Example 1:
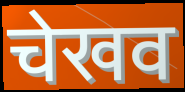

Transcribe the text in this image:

चेखव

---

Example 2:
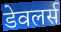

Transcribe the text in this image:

डेवलर्स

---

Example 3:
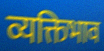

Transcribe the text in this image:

व्यक्तिभाव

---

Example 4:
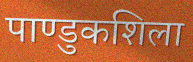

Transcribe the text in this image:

पाण्डुकशिला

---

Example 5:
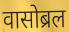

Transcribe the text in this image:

वासोब्रल